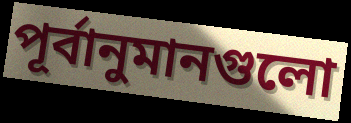
পূর্বানুমানগুলো